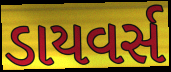
ડાયવર્સ